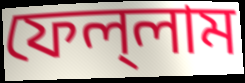
ফেল্‌লাম